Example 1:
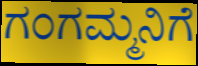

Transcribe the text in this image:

ಗಂಗಮ್ಮನಿಗೆ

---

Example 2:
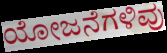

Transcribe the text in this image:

ಯೋಜನೆಗಳಿವು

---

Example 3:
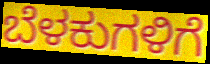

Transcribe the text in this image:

ಬೆಳಕುಗಳಿಗೆ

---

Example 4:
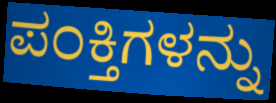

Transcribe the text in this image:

ಪಂಕ್ತಿಗಳನ್ನು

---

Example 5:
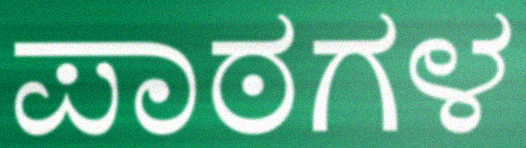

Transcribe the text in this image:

ಪಾಠಗಳ